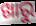
ଖାରୁ